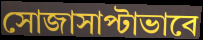
সোজাসাপ্টাভাবে